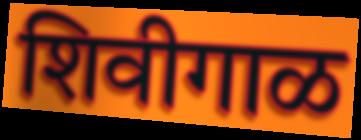
शिवीगाळ